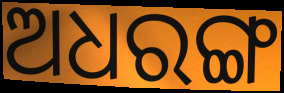
ଅଧରଙ୍ଗ